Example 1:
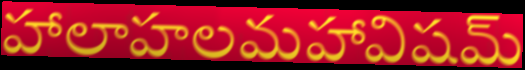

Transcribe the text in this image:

హాలాహలమహావిషమ్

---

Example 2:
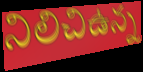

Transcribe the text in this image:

నిలిచిఉన్న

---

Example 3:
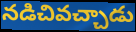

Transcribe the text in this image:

నడిచివచ్చాడు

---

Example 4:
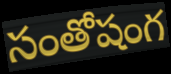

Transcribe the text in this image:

సంతోషంగ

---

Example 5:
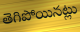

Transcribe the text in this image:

తెగిపోయినట్లు